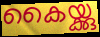
കൈയ്ക്കു